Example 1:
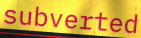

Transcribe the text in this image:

subverted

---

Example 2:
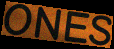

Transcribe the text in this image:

ONES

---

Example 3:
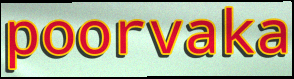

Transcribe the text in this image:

poorvaka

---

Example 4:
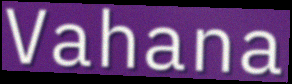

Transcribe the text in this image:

Vahana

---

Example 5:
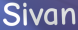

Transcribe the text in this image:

Sivan